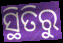
ସ୍ଥିତିରୁ